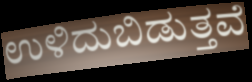
ಉಳಿದುಬಿಡುತ್ತವೆ